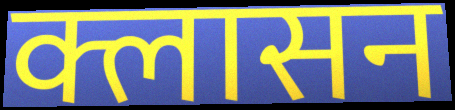
क्लासन